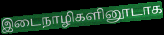
இடைநாழிகளினூடாக